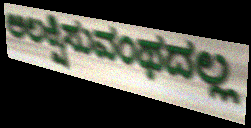
ಅಲಕ್ಷಿಸುವಂಥದಲ್ಲ